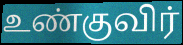
உண்குவிர்